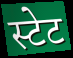
स्टेट